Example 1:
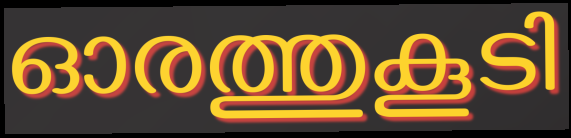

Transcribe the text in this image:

ഓരത്തുകൂടി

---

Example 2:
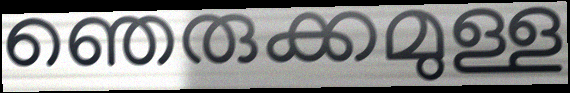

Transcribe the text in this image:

ഞെരുക്കമുള്ള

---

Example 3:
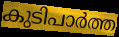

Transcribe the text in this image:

കുടിപാർത്ത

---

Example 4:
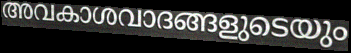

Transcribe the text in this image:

അവകാശവാദങ്ങളുടെയും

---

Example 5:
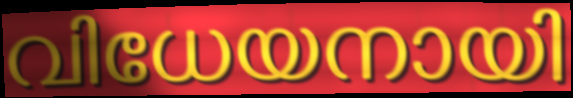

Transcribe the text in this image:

വിധേയനായി